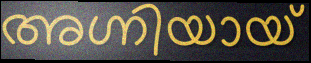
അഗ്നിയായ്